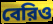
বেরিও